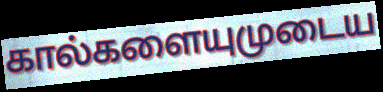
கால்களையுமுடைய